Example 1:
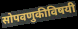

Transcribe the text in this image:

सोपवणुकीविषयी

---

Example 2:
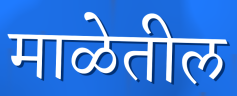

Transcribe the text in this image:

माळेतील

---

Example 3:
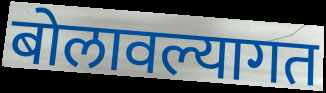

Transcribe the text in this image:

बोलावल्यागत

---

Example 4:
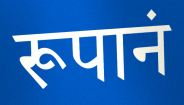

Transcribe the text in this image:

रूपानं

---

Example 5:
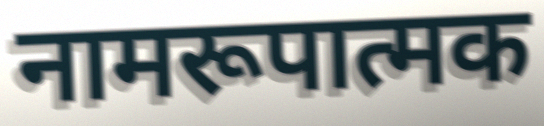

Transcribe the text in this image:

नामरूपात्मक